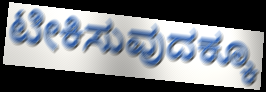
ಟೀಕಿಸುವುದಕ್ಕೂ